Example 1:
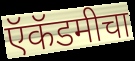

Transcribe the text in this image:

ऍकॅडमीचा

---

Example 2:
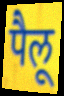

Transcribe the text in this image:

पैलू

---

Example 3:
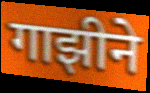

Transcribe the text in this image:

गाझीने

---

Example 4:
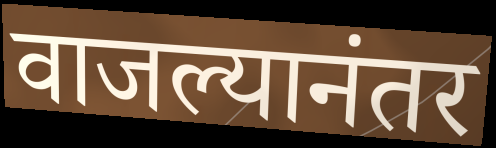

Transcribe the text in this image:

वाजल्यानंतर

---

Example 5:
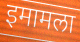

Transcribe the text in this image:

इमामला